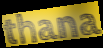
thana